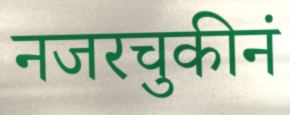
नजरचुकीनं